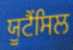
ਯੂਟੈਂਸਿਲ